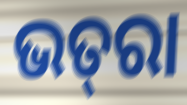
ଭତ୍‌ରା